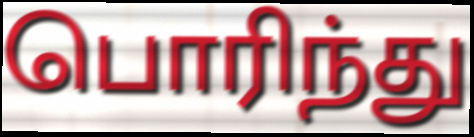
பொரிந்து